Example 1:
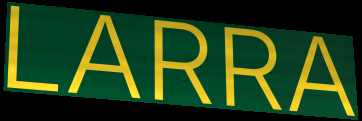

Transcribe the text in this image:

LARRA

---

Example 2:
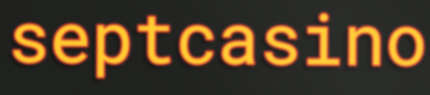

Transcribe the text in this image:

septcasino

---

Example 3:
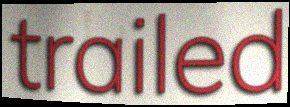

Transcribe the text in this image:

trailed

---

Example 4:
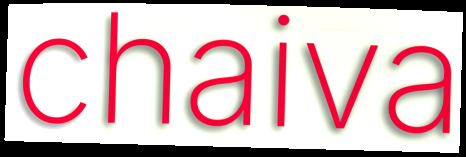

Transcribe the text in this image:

chaiva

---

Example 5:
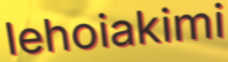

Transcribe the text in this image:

Iehoiakimi